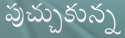
పుచ్చుకున్న